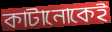
কাটানোকেই